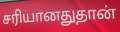
சரியானதுதான்